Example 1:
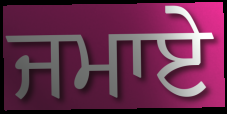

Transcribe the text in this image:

ਜਮਾਏ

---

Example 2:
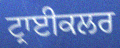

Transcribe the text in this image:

ਟ੍ਰਾਈਕਲਰ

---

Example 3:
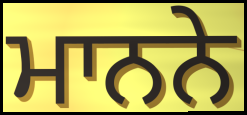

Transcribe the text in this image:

ਮਾਨਨੇ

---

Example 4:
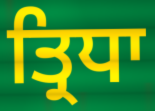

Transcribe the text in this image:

ਤ੍ਰਿਧਾ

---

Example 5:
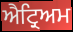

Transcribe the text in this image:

ਐਟ੍ਰਿਅਮ